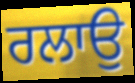
ਰਲਾਉ